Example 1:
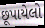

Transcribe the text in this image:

છૂપાયેલો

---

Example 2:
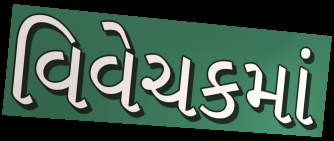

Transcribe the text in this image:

વિવેચકમાં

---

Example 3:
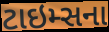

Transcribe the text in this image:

ટાઇમ્સના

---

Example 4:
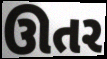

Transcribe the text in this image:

ઊતર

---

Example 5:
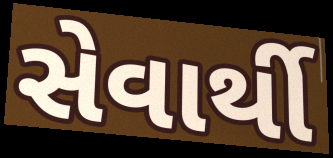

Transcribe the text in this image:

સેવાર્થી